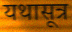
यथासूत्र